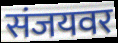
संजयवर